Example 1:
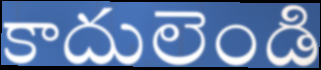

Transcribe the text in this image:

కాదులెండి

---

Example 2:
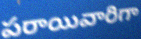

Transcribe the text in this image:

పరాయివారిగా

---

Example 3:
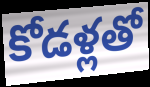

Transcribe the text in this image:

కోడళ్లతో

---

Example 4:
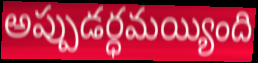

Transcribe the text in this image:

అప్పుడర్ధమయ్యింది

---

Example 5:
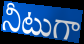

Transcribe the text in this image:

నీటుగా